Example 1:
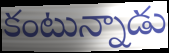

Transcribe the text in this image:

కంటున్నాడు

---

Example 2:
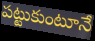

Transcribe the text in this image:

పట్టుకుంటూనే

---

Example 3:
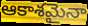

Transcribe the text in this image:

ఆకాశమైనా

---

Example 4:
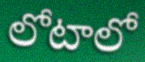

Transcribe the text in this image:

లోటాలో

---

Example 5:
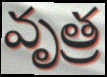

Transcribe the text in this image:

వృత్ర